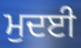
ਮੁਦਈ